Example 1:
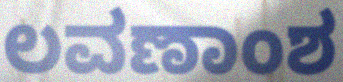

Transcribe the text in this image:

ಲವಣಾಂಶ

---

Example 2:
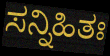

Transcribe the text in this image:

ಸನ್ನಿಹಿತಃ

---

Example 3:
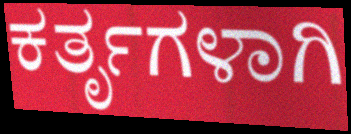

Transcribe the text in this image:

ಕರ್ತೃಗಳಾಗಿ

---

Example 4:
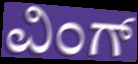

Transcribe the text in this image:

ವಿಂಗ್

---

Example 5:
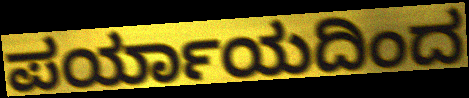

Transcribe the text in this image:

ಪರ್ಯಾಯದಿಂದ